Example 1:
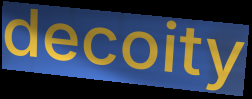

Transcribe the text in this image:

decoity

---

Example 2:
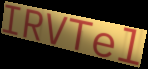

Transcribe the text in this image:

IRVTel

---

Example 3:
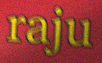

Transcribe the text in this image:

raju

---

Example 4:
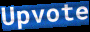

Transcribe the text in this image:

Upvote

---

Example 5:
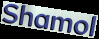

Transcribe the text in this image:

Shamol